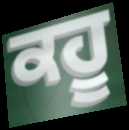
ਕਹੂ